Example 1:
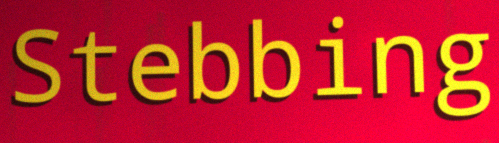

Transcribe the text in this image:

Stebbing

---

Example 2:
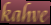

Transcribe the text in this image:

kahve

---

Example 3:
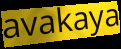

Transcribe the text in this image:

avakaya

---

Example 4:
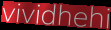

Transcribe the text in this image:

vividhehi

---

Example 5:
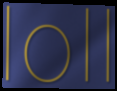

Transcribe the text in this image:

loll